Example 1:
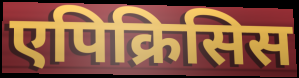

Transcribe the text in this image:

एपिक्रिसिस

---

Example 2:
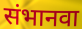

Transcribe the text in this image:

संभानवा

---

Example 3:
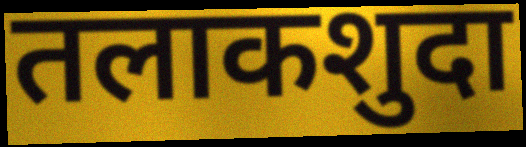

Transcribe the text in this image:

तलाकशुदा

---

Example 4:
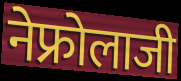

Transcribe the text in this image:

नेफ्रोलाजी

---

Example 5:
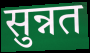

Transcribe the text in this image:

सुन्नत